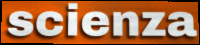
scienza